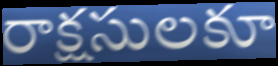
రాక్షసులకూ